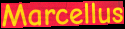
Marcellus